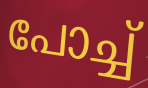
പോച്ച്